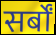
सर्बों